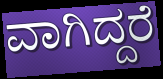
ವಾಗಿದ್ದರೆ